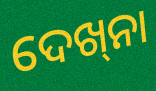
ଦେଖ୍‌ନା